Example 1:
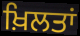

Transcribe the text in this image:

ਖ਼ਿਲਤਾਂ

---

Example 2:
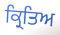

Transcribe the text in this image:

ਕ੍ਰਿਤਿਅ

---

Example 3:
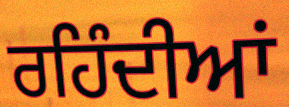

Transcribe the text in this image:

ਰਹਿੰਦੀਆਂ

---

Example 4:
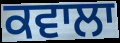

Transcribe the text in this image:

ਕਵਾਲਾ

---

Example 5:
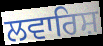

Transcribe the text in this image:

ਲਵਾਰਿਸ਼